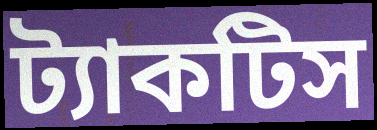
ট্যাকটিস